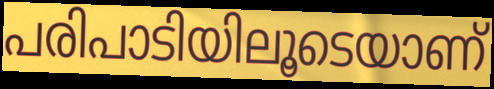
പരിപാടിയിലൂടെയാണ്